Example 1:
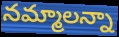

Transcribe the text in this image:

నమ్మాలన్నా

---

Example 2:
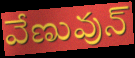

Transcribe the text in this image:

వేణువున్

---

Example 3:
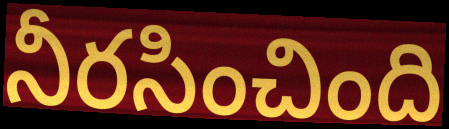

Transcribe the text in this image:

నీరసించింది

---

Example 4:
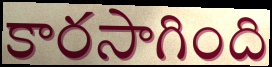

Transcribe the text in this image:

కారసాగింది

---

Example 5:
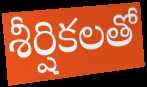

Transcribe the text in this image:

శీర్షికలతో